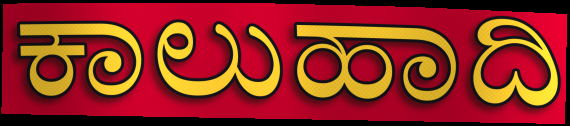
ಕಾಲುಹಾದಿ